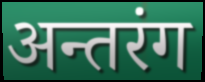
अन्तरंग